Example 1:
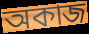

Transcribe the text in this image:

অকাজ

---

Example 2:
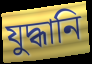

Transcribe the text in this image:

যুদ্ধানি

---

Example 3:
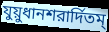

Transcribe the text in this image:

যুয়ুধানশরার্দিতম্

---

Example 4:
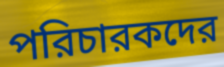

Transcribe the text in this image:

পরিচারকদের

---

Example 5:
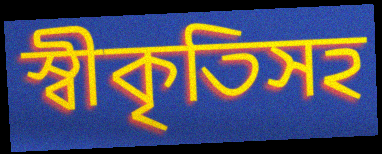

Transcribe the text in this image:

স্বীকৃতিসহ